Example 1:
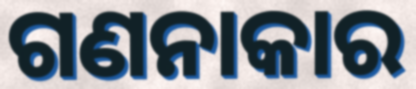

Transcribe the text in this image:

ଗଣନାକାର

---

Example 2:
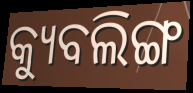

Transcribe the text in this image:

କ୍ୟୁବଲିଙ୍ଗ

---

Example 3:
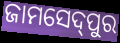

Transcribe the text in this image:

ଜାମସେଦ୍‌ପୁର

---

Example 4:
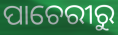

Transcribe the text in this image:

ପାଚେରୀରୁ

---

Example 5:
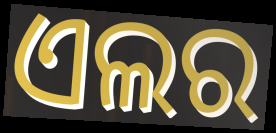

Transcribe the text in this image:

ଏଲର